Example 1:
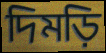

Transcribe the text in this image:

দিমড়ি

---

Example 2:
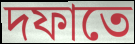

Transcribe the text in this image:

দফাতে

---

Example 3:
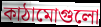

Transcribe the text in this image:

কাঠামোগুলো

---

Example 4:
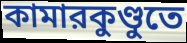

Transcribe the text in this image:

কামারকুণ্ডুতে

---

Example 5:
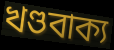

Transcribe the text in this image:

খণ্ডবাক্য